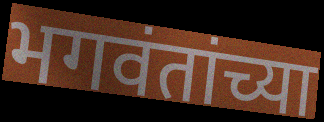
भगवंतांच्या